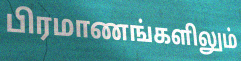
பிரமாணங்களிலும்